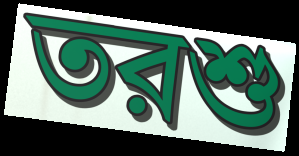
তরশু